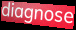
diagnose